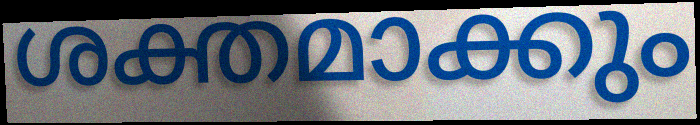
ശക്തമാക്കും